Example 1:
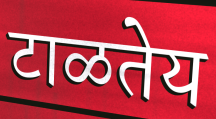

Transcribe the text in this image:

टाळतेय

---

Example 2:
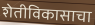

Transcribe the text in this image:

शेतीविकासाचा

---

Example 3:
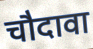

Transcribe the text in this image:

चौदावा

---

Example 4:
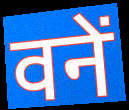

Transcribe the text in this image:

वनें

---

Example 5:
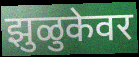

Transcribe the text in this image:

झुळुकेवर